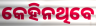
କେହିନଥିବେ